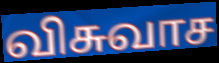
விசுவாச